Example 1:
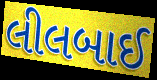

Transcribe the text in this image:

લીલબાઈ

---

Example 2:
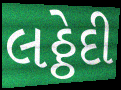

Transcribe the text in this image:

લઠ્ઠેદી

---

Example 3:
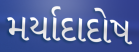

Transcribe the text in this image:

મર્યાદાદોષ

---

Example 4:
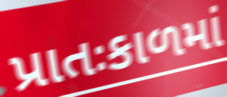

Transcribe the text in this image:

પ્રાતઃકાળમાં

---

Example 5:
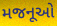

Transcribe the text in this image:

મજનૂઓ